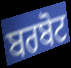
ਬਰਬੋਟ